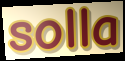
solla